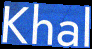
Khal